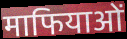
माफियाओं